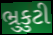
ભ્રુકુટી